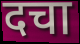
दचा